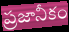
ప్రజానీకం